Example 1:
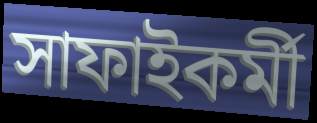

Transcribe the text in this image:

সাফাইকর্মী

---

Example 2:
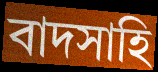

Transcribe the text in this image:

বাদসাহি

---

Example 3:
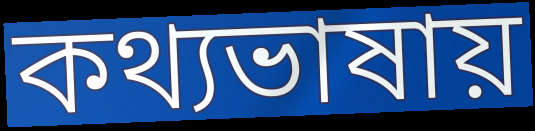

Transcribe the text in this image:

কথ্যভাষায়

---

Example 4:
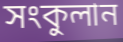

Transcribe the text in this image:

সংকুলান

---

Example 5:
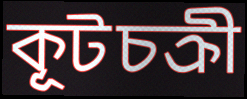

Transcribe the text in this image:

কূটচক্রী